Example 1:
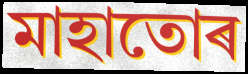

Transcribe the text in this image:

মাহাতোৰ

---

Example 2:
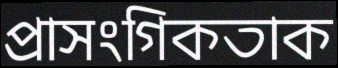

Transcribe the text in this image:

প্ৰাসংগিকতাক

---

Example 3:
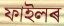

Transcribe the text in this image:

ফাইলৰ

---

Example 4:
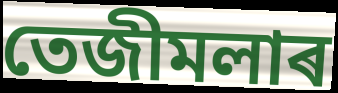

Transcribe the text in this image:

তেজীমলাৰ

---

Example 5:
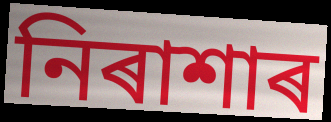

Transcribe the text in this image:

নিৰাশাৰ